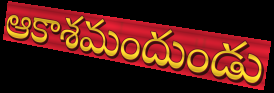
ఆకాశమందుండు